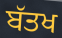
ਬੱਤਖ